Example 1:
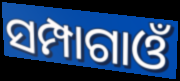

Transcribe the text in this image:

ସମ୍ପାଗାଓଁ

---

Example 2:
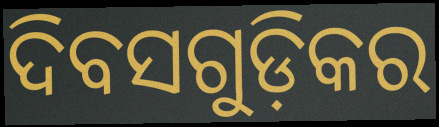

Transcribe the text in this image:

ଦିବସଗୁଡ଼ିକର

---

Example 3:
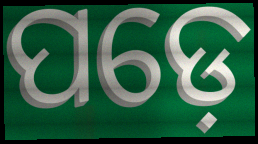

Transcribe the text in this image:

ପଡ଼େ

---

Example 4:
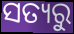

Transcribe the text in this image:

ସତ୍ୟରୁ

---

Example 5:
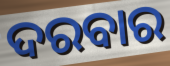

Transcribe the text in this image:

ଦରବାର